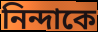
নিন্দাকে